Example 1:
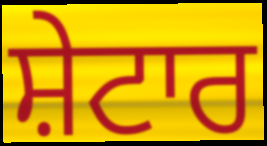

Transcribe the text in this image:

ਸ਼ੇਟਾਰ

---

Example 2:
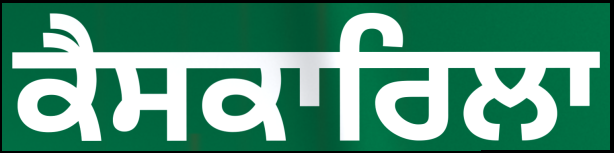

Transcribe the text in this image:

ਕੈਸਕਾਰਿਲਾ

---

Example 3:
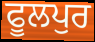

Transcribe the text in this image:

ਫੂਲਪੁਰ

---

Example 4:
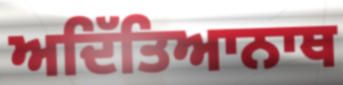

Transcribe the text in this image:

ਅਦਿੱਤਿਆਨਾਥ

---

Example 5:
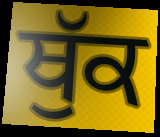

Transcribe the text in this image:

ਥੁੱਕ